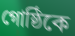
গোষ্ঠিকে